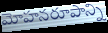
మోహనరూపాన్ని